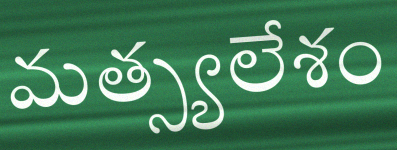
మత్స్యలేశం